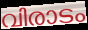
വിരാടം